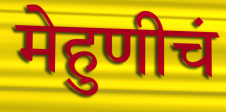
मेहुणीचं